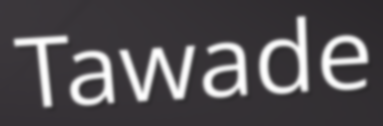
Tawade